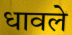
धावले